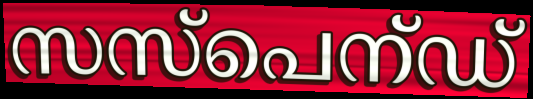
സസ്പെന്ഡ്